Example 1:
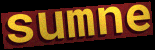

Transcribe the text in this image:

sumne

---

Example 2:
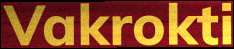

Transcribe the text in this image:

Vakrokti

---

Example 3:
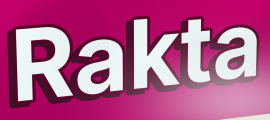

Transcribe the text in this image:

Rakta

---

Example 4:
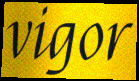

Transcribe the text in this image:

vigor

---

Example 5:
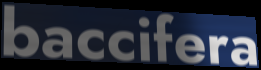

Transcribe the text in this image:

baccifera